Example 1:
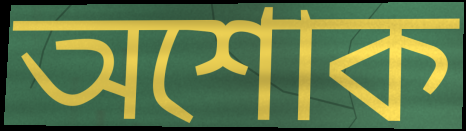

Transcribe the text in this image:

অশোক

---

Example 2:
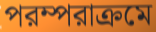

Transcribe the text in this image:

পরম্পরাক্রমে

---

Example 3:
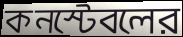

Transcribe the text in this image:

কনস্টেবলের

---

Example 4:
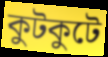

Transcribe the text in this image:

কুটকুটে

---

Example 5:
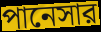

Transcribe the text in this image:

পানেসার